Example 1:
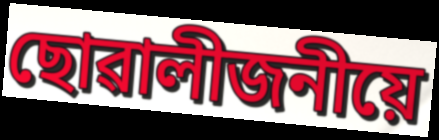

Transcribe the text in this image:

ছোৱালীজনীয়ে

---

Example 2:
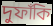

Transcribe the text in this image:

দুফাঁকি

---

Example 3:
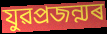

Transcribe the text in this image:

যুৱপ্ৰজন্মৰ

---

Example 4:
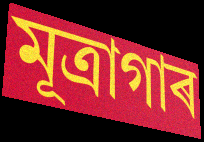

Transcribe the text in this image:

মূত্ৰাগাৰ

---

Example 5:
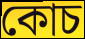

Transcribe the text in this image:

কোচ